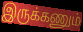
இருக்கணும்